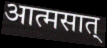
आत्मसात्